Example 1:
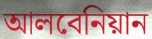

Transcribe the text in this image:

আলবেনিয়ান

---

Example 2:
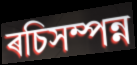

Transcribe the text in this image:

ৰচিসম্পন্ন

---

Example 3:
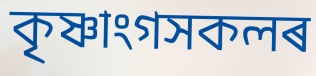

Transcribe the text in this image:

কৃষ্ণাংগসকলৰ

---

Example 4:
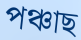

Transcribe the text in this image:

পঞ্চাছ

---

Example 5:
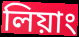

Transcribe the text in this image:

লিয়াং